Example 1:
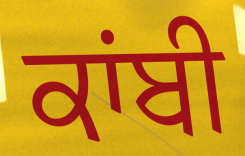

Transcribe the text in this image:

ਕਾਂਬੀ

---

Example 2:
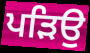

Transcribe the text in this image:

ਪੜਿਉ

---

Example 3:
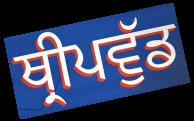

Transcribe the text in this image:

ਥ੍ਰੀਪਵੁੱਡ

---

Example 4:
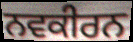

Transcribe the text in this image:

ਨਵਕੀਰਨ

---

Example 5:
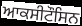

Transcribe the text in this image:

ਆਕਸੀਟੌਸਿਨ